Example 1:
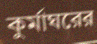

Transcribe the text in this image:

কুর্মাঘরের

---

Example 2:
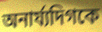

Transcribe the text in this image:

অনার্য্যদিগকে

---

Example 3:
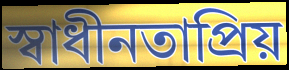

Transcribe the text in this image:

স্বাধীনতাপ্রিয়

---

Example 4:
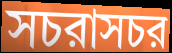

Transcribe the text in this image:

সচরাসচর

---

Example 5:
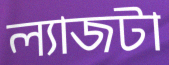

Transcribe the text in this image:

ল্যাজটা